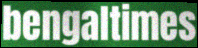
bengaltimes